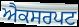
ਐਕਸਰਪਟ